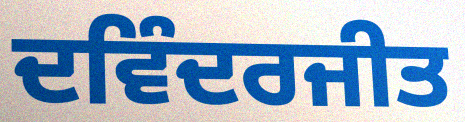
ਦਵਿੰਦਰਜੀਤ